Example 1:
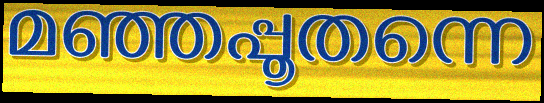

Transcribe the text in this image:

മഞ്ഞപ്പൂതന്നെ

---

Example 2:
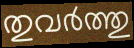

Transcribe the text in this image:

തുവർത്തു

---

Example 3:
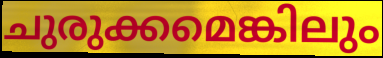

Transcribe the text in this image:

ചുരുക്കമെങ്കിലും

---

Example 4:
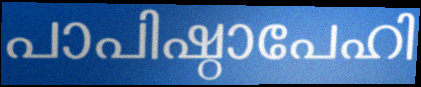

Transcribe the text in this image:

പാപിഷ്ഠാപേഹി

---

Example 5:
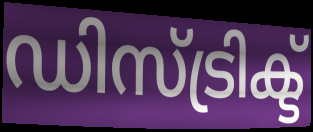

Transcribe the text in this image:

ഡിസ്ട്രിക്ട്